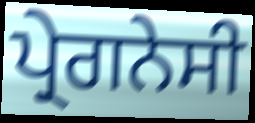
ਪ੍ਰੇਗਨੇਸੀ